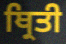
ਥ੍ਰਿਤੀ